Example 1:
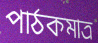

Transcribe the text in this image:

পাঠকমাত্র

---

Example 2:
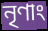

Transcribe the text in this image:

নৃণাং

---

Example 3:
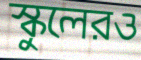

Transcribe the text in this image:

স্কুলেরও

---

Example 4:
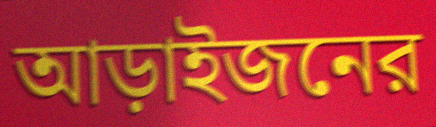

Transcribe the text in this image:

আড়াইজনের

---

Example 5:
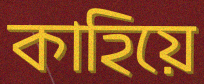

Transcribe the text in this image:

কাহিয়ে